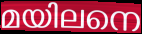
മയിലനെ